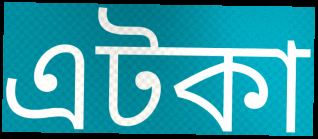
এটকা